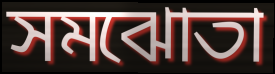
সমঝোতা